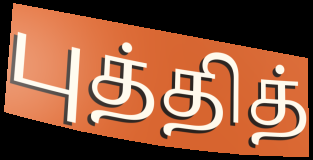
புத்தித்